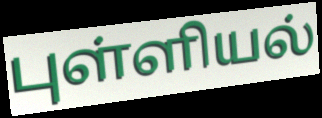
புள்ளியல்